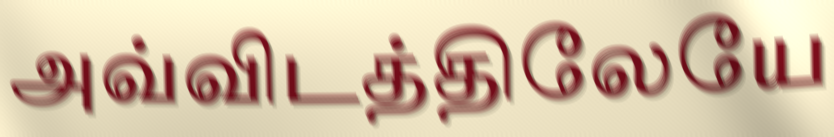
அவ்விடத்திலேயே